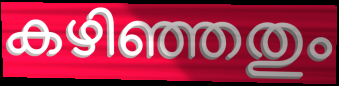
കഴിഞ്ഞതും